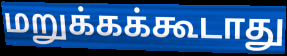
மறுக்கக்கூடாது